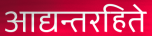
आद्यन्तरहिते